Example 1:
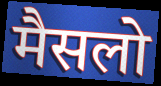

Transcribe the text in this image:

मैसलो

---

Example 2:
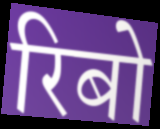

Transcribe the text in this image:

रिबो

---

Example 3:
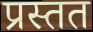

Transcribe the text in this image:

प्रस्तत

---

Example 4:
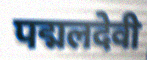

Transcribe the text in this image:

पद्मलदेवी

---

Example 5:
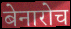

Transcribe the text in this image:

बेनारोच